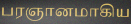
பரஞானமாகிய